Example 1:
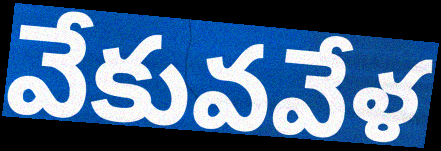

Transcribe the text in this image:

వేకువవేళ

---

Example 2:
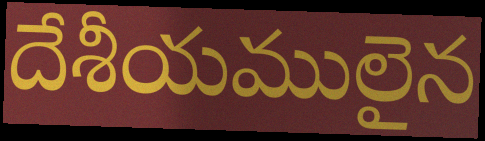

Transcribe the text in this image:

దేశీయములైన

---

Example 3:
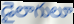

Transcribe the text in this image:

డైలాగులూ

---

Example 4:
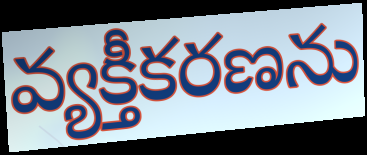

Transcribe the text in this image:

వ్యక్తీకరణను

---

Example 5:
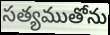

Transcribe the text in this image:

సత్యముతోను